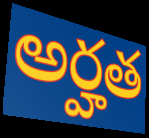
అర్హత